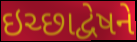
ઇચ્છાદ્વેષને